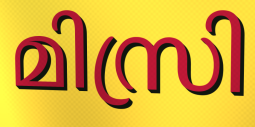
മിസ്രി